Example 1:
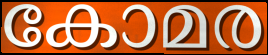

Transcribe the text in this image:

കോമര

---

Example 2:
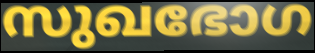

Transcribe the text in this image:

സുഖഭോഗ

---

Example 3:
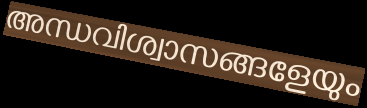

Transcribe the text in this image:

അന്ധവിശ്വാസങ്ങളേയും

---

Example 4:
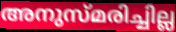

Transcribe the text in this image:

അനുസ്മരിച്ചില്ല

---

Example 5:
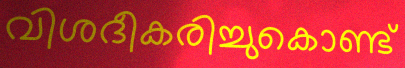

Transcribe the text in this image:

വിശദീകരിച്ചുകൊണ്ട്